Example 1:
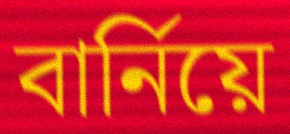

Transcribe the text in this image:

বার্নিয়ে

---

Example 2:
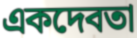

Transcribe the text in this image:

একদেবতা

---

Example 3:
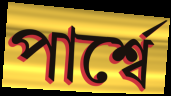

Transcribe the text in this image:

পার্শ্বে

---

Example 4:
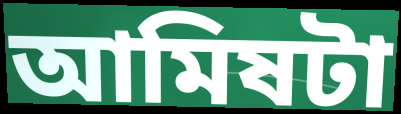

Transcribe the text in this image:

আমিষটা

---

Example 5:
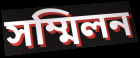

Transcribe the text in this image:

সম্মিলন